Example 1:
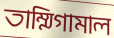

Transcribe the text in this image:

তাম্মিগামাল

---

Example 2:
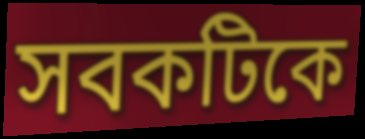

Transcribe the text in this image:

সবকটিকে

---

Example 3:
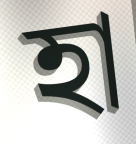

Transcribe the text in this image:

হা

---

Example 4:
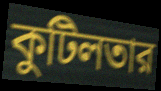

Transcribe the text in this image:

কুটিলতার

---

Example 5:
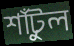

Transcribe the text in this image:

শাঁটুল